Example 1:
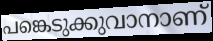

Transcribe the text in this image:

പങ്കെടുക്കുവാനാണ്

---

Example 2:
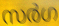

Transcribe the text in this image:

സർഗ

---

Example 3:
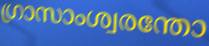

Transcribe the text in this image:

ഗ്രാസാംശ്വരന്തോ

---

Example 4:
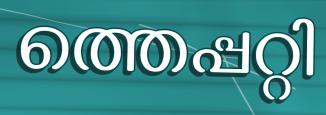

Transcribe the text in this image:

ത്തെപ്പറ്റി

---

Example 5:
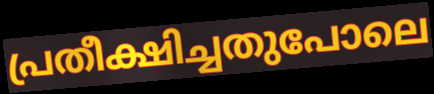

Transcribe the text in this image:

പ്രതീക്ഷിച്ചതുപോലെ